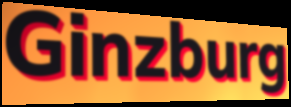
Ginzburg